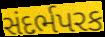
સંદર્ભપરક